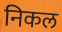
निकल